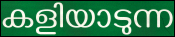
കളിയാടുന്ന